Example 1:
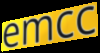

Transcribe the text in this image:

emcc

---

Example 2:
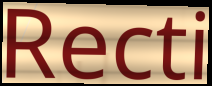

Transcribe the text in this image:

Recti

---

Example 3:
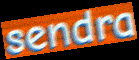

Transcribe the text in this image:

sendra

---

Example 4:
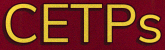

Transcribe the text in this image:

CETPs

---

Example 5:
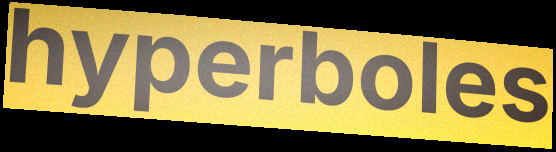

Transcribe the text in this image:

hyperboles